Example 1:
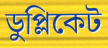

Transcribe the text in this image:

ডুপ্লিকেট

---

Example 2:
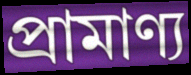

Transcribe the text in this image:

প্ৰামাণ্য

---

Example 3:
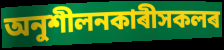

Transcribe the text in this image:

অনুশীলনকাৰীসকলৰ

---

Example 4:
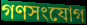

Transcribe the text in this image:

গণসংযোগ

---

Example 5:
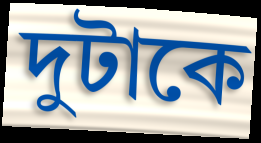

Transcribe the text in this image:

দুটাকে